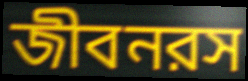
জীবনরস